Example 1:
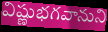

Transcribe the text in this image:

విష్ణుభగవానుని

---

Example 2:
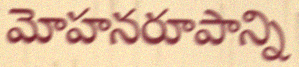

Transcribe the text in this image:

మోహనరూపాన్ని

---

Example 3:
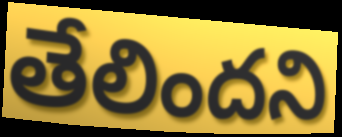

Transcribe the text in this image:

తేలిందని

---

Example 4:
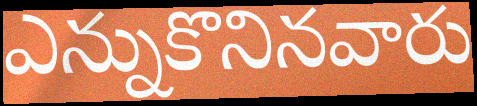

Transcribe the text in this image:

ఎన్నుకొనినవారు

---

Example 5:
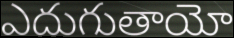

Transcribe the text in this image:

ఎదుగుతాయో